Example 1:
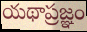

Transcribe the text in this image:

యథాప్రజ్ఞం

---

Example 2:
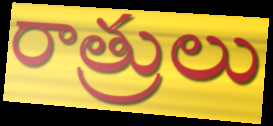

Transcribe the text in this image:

రాత్రులు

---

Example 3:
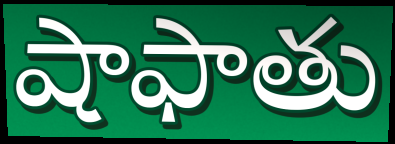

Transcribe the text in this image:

షాఫాతు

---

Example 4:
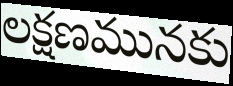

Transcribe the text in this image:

లక్షణమునకు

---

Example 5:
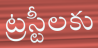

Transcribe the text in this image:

ట్రస్టీలకు